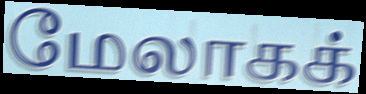
மேலாகக்